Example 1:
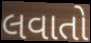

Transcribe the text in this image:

લવાતો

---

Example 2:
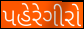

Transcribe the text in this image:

પહેરેગીરો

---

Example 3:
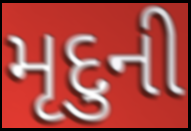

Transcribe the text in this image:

મૃદુની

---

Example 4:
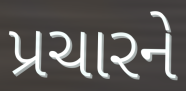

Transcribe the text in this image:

પ્રચારને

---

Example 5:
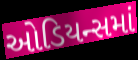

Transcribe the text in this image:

ઓડિયન્સમાં